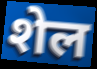
शेल